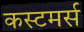
कस्‍टमर्स